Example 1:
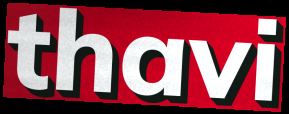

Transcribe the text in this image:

thavi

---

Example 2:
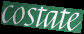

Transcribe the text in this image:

costate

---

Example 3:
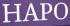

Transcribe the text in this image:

HAPO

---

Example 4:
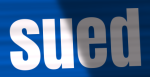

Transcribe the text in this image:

sued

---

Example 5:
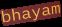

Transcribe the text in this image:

bhayam